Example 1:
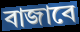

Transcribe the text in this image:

বাজাবে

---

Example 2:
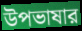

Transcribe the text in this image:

উপভাষার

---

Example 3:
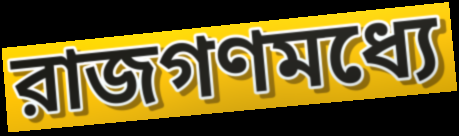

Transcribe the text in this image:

রাজগণমধ্যে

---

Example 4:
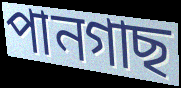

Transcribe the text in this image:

পানগাছ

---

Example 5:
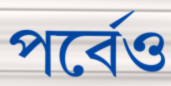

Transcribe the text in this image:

পর্বেও